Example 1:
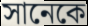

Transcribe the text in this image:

সানেকে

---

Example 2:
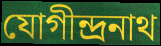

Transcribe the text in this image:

যোগীন্দ্রনাথ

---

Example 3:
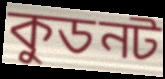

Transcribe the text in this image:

কুডনট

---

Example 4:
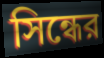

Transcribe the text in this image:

সিন্ধের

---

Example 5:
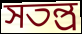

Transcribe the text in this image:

সতন্ত্র